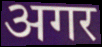
अगर